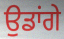
ਉਡਾਂਗੇ